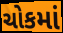
ચોકમાં